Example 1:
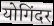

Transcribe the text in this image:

योगिंदर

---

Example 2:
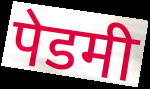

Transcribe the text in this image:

पेडमी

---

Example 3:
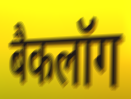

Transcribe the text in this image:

बैकलॉग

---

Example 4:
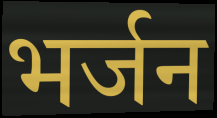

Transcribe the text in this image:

भर्जन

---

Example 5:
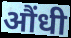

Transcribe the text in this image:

औंधी